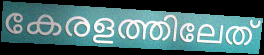
കേരളത്തിലേത്